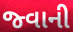
જ્વાની